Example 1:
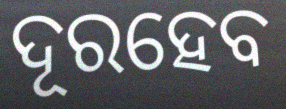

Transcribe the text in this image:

ଦୂରହେବ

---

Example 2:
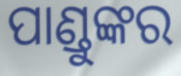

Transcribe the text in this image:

ପାଣ୍ଡୁଙ୍କର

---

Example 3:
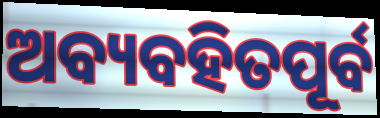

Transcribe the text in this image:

ଅବ୍ୟବହିତପୂର୍ବ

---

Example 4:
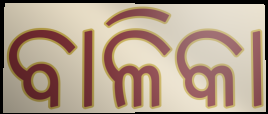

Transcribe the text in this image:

ବାଳିକା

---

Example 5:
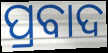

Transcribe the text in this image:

ପ୍ରବାଦ